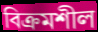
বিক্রমশীল